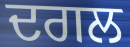
ਦਗਲ